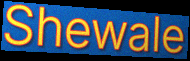
Shewale